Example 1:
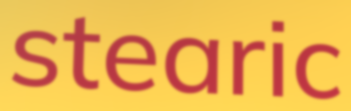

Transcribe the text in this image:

stearic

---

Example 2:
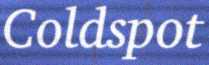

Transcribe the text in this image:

Coldspot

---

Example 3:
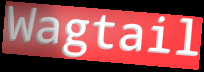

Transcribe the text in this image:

Wagtail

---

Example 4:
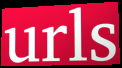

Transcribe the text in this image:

urls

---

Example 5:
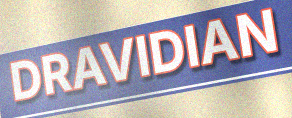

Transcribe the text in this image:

DRAVIDIAN